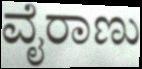
ವೈರಾಣು